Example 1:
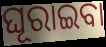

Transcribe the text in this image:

ଘୂରାଇବା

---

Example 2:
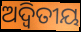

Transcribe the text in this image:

ଅଦ୍ବିତୀୟ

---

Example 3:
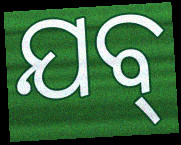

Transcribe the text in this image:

ଯବ୍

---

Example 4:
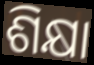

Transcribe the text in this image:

ଶିକ୍ଷା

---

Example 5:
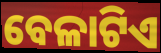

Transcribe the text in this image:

ବେଳାଟିଏ